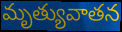
మృత్యువాతన